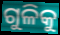
ଗୁଳିକୁ